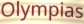
Olympias